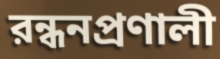
রন্ধনপ্রণালী